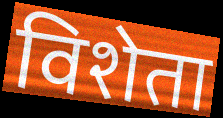
विशेता